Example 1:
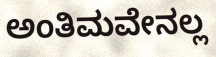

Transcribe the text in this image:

ಅಂತಿಮವೇನಲ್ಲ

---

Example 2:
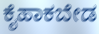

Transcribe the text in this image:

ಕೈಹಾಕಬೇಡ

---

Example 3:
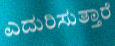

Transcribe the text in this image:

ಎದುರಿಸುತ್ತಾರೆ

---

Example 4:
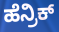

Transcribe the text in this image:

ಹೆನ್ರಿಕ್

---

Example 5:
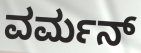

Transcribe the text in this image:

ವರ್ಮನ್